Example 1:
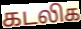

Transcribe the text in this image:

கடலிக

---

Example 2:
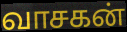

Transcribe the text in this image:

வாசகன்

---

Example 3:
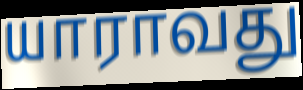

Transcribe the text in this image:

யாராவது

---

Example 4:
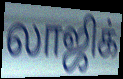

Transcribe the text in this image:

லாஜிக்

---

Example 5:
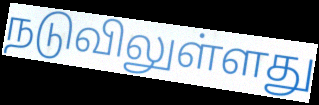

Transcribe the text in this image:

நடுவிலுள்ளது